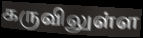
கருவிலுள்ள